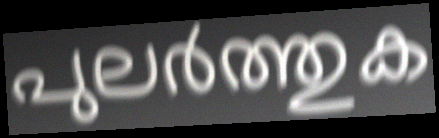
പുലർത്തുക